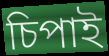
চিপাই